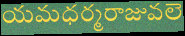
యమధర్మరాజువలె